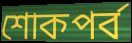
শোকপর্ব